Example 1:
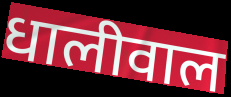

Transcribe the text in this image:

धालीवाल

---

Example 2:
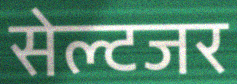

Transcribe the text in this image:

सेल्टजर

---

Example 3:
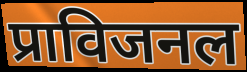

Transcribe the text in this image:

प्राविजनल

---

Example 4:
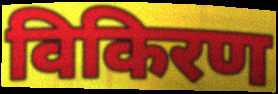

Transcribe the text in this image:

विकिरण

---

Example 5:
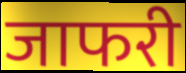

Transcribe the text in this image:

जाफरी